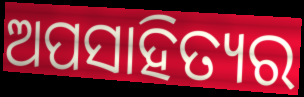
ଅପସାହିତ୍ୟର